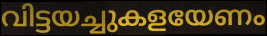
വിട്ടയച്ചുകളയേണം